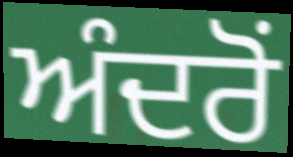
ਅੰਦਰੋਂ